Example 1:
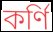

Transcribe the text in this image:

কর্ণি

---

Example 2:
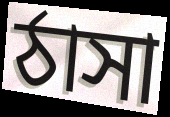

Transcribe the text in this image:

ঠাসা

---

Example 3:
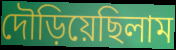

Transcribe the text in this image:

দৌড়িয়েছিলাম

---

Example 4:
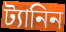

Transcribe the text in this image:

ট্যানিন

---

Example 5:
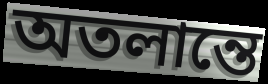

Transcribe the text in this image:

অতলান্তে